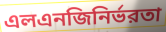
এলএনজিনির্ভরতা